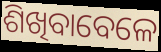
ଶିଖିବାବେଳେ